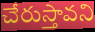
చేరుస్తావని